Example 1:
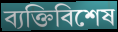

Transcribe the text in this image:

ব্যক্তিবিশেষ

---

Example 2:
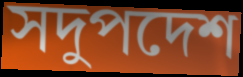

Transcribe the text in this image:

সদুপদেশ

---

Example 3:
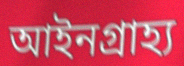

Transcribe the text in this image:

আইনগ্রাহ্য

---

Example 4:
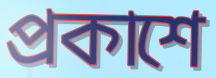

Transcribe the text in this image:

প্রকাশে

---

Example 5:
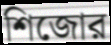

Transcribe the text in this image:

শিজোর